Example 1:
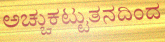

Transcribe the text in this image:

ಅಚ್ಚುಕಟ್ಟುತನದಿಂದ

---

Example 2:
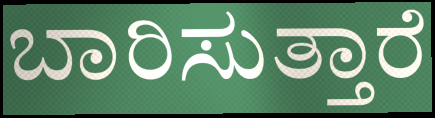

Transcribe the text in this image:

ಬಾರಿಸುತ್ತಾರೆ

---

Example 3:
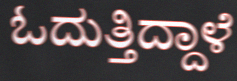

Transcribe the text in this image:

ಓದುತ್ತಿದ್ದಾಳೆ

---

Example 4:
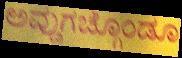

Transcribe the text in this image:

ಅವ್ಡುಗಚ್ಗೊಂಡೂ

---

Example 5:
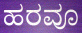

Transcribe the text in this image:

ಹರವೂ